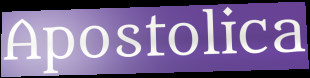
Apostolica